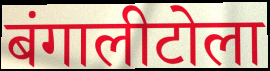
बंगालीटोला